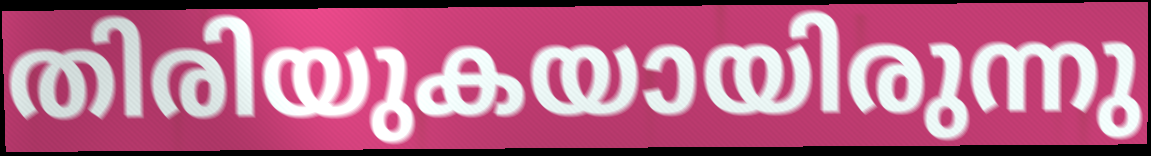
തിരിയുകയായിരുന്നു